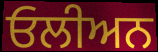
ਓਲੀਅਨ